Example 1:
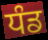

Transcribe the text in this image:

ਧੰਡ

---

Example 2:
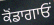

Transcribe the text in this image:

ਕੋਂਡਾਗਾਓਂ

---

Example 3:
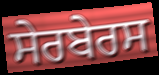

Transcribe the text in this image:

ਸੇਰਬੇਰਸ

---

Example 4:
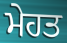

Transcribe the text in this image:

ਮੇਹਤ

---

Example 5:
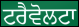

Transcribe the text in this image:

ਟਰੈਵੋਲਟਾ